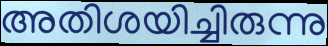
അതിശയിച്ചിരുന്നു